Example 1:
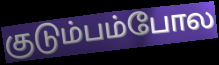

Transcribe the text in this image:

குடும்பம்போல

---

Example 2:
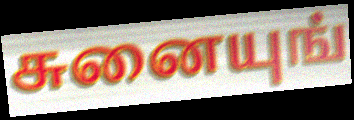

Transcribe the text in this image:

சுனையுங்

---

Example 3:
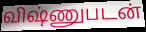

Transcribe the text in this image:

விஷ்ணுபடன்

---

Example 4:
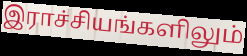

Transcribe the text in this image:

இராச்சியங்களிலும்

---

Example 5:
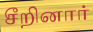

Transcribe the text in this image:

சீறினார்